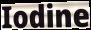
Iodine